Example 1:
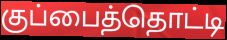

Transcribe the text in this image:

குப்பைத்தொட்டி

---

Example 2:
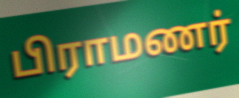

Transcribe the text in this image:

பிராமணர்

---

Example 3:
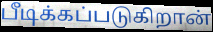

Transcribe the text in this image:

பீடிக்கப்படுகிறான்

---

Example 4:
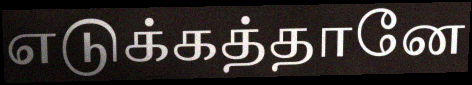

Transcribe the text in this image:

எடுக்கத்தானே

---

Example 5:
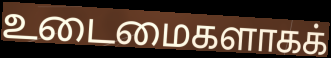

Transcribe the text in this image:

உடைமைகளாகக்